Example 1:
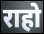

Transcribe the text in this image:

राहो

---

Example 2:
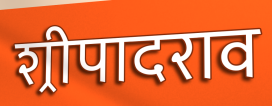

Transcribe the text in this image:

श्रीपादराव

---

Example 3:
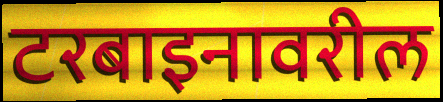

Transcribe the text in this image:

टरबाइनावरील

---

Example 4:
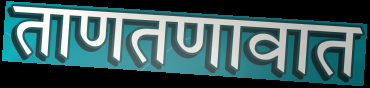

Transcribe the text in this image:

ताणतणावात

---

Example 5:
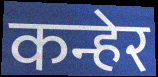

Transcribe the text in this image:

कन्हेर